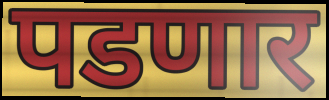
पडणार